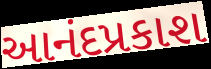
આનંદપ્રકાશ